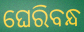
ଘେରିବନ୍ଧ